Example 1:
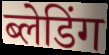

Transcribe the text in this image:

ब्लेडिंग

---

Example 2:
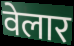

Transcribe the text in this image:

वेलार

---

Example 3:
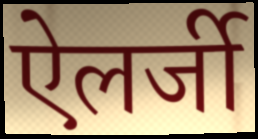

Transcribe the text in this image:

ऐलर्जी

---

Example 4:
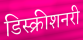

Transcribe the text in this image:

डिस्क्रीशनरी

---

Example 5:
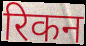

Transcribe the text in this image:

रिकन